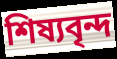
শিষ্যবৃন্দ